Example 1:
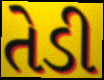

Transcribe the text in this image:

તેડી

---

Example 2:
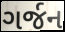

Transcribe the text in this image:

ગર્જન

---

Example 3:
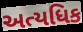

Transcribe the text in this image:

અત્યધિક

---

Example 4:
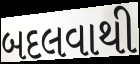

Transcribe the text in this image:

બદલવાથી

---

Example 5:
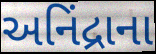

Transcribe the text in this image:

અનિંદ્રાના